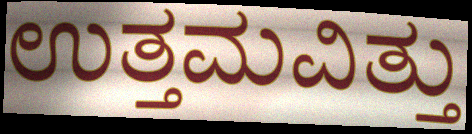
ಉತ್ತಮವಿತ್ತು